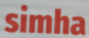
simha